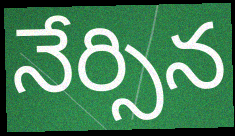
నేర్సిన